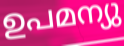
ഉപമന്യു